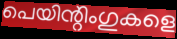
പെയിന്റിംഗുകളെ